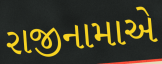
રાજીનામાએ